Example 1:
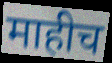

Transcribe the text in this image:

माहीच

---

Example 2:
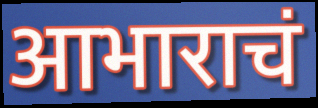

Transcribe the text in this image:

आभाराचं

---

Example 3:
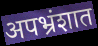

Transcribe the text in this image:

अपभ्रंशात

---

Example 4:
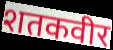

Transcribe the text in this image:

शतकवीर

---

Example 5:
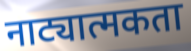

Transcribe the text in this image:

नाट्यात्मकता